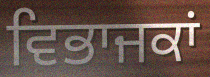
ਵਿਭਾਜਕਾਂ